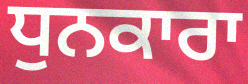
ਧੁਨਕਾਰਾ